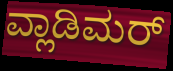
ವ್ಲಾಡಿಮರ್